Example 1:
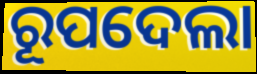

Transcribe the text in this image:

ରୂପଦେଲା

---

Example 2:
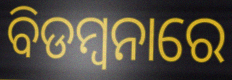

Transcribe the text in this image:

ବିଡମ୍ବନାରେ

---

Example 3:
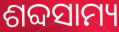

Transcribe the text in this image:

ଶବ୍ଦସାମ୍ୟ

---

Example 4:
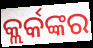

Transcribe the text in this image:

କ୍ଲର୍କଙ୍କର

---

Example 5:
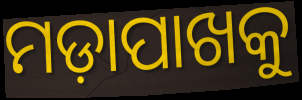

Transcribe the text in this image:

ମଡ଼ାପାଖକୁ